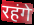
रहंगे